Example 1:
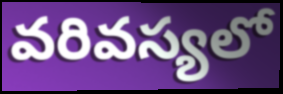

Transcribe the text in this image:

వరివస్యలో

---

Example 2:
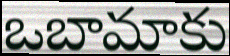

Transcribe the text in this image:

ఒబామాకు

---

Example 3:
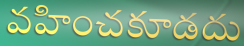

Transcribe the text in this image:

వహించకూడదు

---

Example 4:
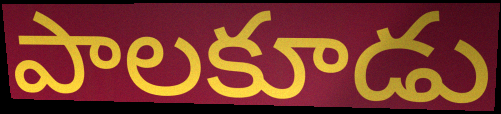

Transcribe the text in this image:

పాలకూడు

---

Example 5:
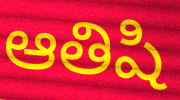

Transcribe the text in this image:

ఆతిషి